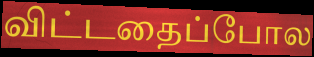
விட்டதைப்போல